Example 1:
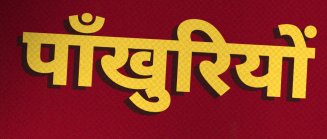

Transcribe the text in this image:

पाँखुरियों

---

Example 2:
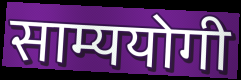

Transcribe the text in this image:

साम्ययोगी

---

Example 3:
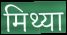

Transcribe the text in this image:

मिथ्या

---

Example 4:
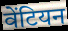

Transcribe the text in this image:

वेंटियन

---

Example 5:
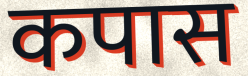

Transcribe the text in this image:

कपास